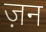
ज़न